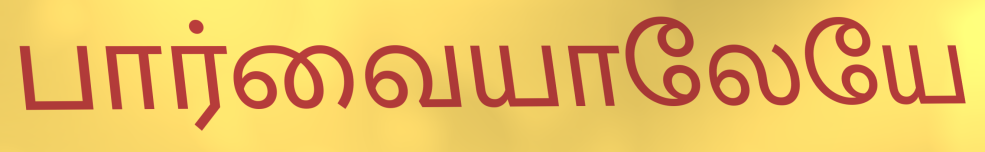
பார்வையாலேயே